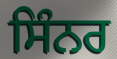
ਸਿੰਨਰ